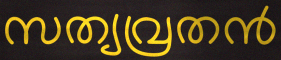
സത്യവ്രതൻ